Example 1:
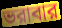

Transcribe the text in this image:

ভরাবার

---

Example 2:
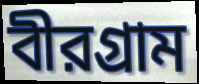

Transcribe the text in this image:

বীরগ্রাম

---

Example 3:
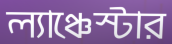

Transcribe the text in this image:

ল্যাঞ্চেস্টার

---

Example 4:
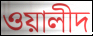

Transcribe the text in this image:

ওয়ালীদ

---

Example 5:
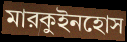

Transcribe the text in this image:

মারকুইনহোস